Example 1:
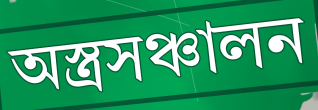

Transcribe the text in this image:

অস্ত্রসঞ্চালন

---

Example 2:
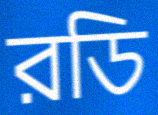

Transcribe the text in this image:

রডি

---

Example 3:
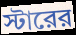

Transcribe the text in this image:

স্টারের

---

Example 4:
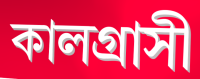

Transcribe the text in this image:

কালগ্রাসী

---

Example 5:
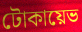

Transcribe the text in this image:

টোকায়েভ